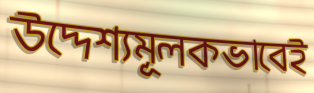
উদ্দেশ্যমূলকভাবেই